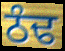
ਠੰਢ